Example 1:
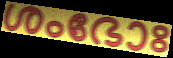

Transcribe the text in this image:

ശംഭോഃ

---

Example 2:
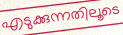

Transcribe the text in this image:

എടുക്കുന്നതിലൂടെ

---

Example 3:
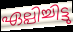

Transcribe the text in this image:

ഏല്പിച്ചിട്ടു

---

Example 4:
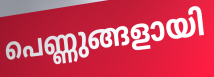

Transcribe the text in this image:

പെണ്ണുങ്ങളായി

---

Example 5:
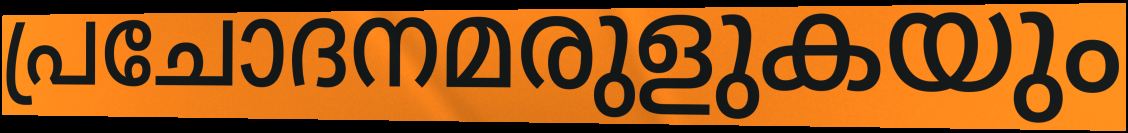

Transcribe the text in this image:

പ്രചോദനമരുളുകയും